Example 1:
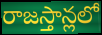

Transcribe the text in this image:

రాజస్తాన్లలో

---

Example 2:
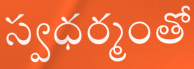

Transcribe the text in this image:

స్వధర్మంతో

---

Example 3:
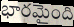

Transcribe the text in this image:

భారమైంది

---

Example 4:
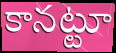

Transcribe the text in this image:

కానట్టూ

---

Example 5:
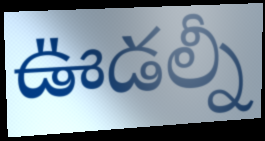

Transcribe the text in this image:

ఊడల్నీ